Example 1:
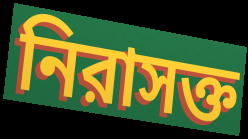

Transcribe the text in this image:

নিরাসক্ত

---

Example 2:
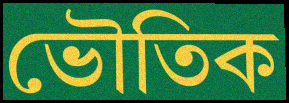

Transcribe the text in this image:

ভৌতিক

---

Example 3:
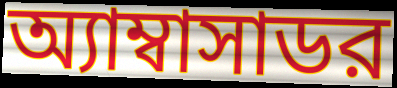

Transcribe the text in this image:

অ্যাম্বাসাডর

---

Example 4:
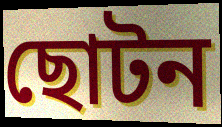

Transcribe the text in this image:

ছোটন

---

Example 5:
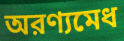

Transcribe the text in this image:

অরণ্যমেধ